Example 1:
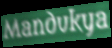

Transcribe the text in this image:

Mandukya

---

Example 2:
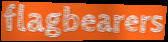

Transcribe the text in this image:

flagbearers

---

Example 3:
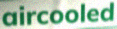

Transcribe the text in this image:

aircooled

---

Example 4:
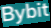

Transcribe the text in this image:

Bybit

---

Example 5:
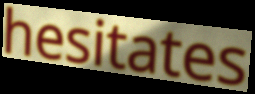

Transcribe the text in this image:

hesitates